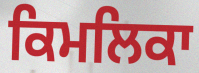
ਕਿਮਲਿਕਾ